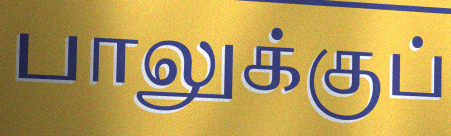
பாலுக்குப்